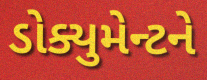
ડોક્યુમેન્ટને